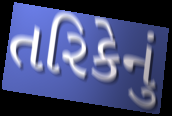
તરિકેનું